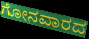
ಗೋನವಾರದ